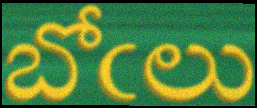
బోఁలు